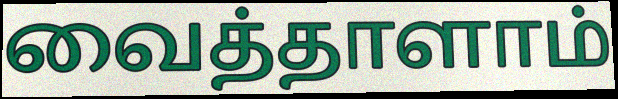
வைத்தாளாம்